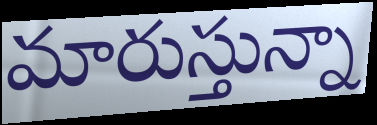
మారుస్తున్నా